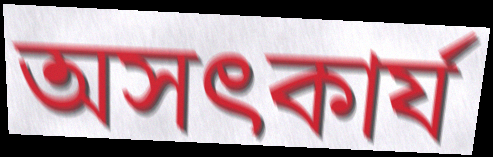
অসৎকার্য